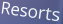
Resorts